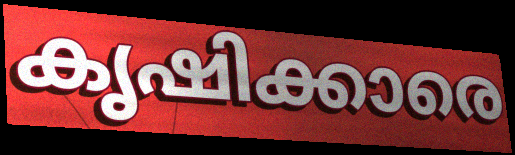
കൃഷിക്കാരെ